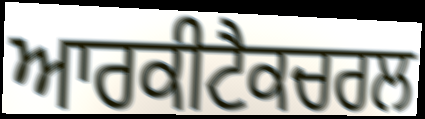
ਆਰਕੀਟੈਕਚਰਲ